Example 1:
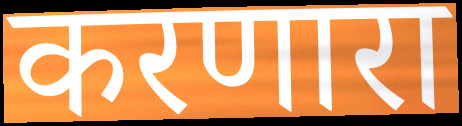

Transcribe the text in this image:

करणारा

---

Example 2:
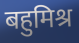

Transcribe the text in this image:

बहुमिश्र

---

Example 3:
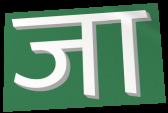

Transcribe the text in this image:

जा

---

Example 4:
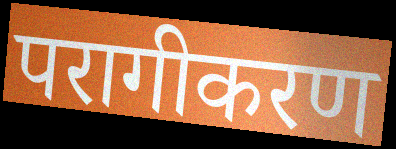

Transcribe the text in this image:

परागीकरण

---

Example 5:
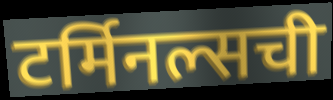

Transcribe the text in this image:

टर्मिनल्सची